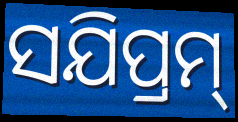
ସଯିପ୍ରମ୍